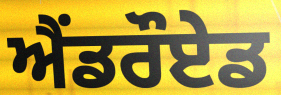
ਐਂਡਰੌਏਡ